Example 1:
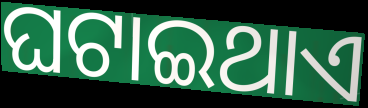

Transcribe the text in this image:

ଘଟାଇଥାଏ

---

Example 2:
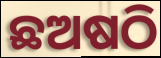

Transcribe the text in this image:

ଛଅଷଠି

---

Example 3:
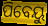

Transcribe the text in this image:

ପିବେୟୁ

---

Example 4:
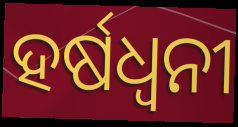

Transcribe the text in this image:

ହର୍ଷଧ୍ୱନୀ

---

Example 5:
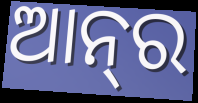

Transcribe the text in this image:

ଆନ୍‌ର